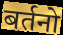
बर्तनो